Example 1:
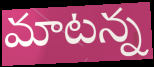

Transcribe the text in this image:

మాటన్న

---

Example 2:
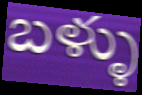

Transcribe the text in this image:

బళ్ళు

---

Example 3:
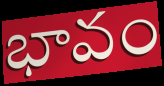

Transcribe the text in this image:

భావం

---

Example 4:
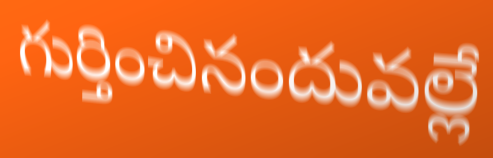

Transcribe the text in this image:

గుర్తించినందువల్లే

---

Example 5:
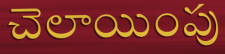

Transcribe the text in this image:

చెలాయింపు